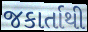
જકાર્તાથી